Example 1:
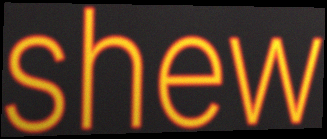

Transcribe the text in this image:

shew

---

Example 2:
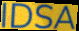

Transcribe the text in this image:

IDSA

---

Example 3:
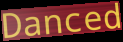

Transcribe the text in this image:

Danced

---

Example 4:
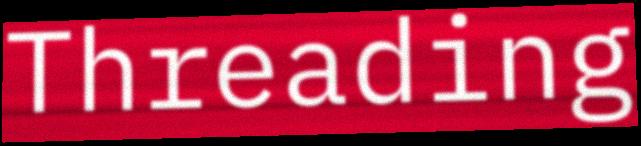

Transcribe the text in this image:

Threading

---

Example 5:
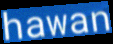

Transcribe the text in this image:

hawan